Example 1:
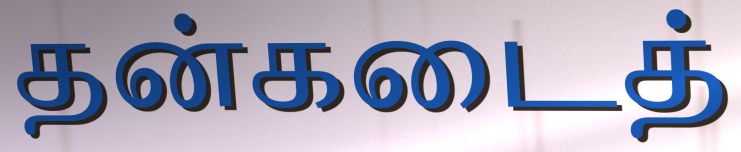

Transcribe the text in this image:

தன்கடைத்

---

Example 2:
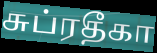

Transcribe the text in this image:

சுப்ரதீகா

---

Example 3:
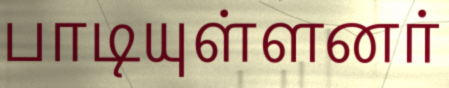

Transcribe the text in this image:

பாடியுள்ளனர்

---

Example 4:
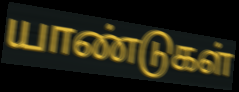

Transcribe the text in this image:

யாண்டுகள்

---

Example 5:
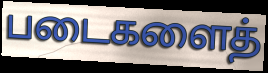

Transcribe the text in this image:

படைகளைத்